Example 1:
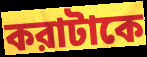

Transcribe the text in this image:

করাটাকে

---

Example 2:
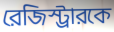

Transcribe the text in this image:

রেজিস্ট্রারকে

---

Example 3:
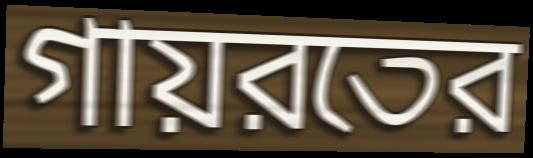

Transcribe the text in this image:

গায়রতের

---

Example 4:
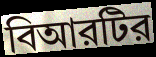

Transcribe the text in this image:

বিআরটির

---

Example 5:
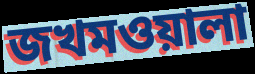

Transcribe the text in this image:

জখমওয়ালা